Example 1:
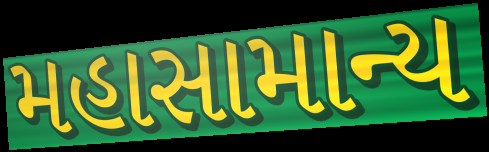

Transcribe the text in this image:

મહાસામાન્ય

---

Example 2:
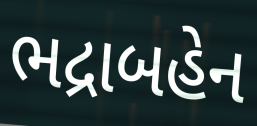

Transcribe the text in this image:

ભદ્રાબહેન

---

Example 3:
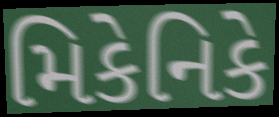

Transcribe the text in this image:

મિકેનિકે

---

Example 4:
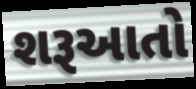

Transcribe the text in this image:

શરૂઆતો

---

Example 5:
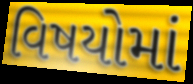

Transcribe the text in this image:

વિષયોમાં